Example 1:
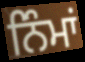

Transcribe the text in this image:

ਨਿੰਮਾਂ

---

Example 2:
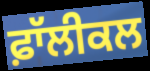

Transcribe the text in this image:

ਫ਼ਾੱਲੀਕਲ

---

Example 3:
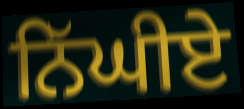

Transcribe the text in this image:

ਨਿੱਘੀਏ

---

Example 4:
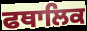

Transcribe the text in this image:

ਫਥਾਲਿਕ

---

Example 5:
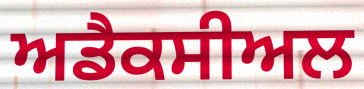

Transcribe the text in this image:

ਅਡੈਕਸੀਅਲ